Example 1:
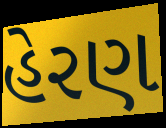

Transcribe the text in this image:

હેરણ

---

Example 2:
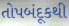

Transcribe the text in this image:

તોપબંદૂકથી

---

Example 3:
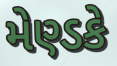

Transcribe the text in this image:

મેણ્ડકે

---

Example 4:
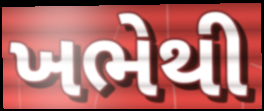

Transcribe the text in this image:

ખભેથી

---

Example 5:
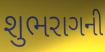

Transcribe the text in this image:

શુભરાગની